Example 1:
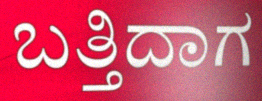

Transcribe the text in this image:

ಬತ್ತಿದಾಗ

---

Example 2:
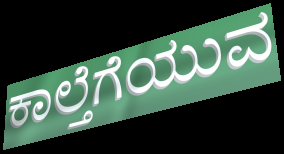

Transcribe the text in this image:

ಕಾಲ್ತೆಗೆಯುವ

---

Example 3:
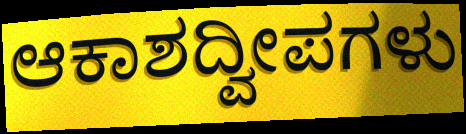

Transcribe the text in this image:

ಆಕಾಶದ್ವೀಪಗಳು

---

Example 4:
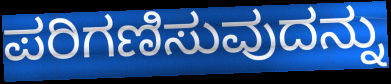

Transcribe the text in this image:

ಪರಿಗಣಿಸುವುದನ್ನು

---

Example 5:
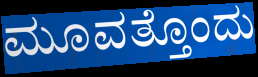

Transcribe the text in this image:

ಮೂವತ್ತೊಂದು